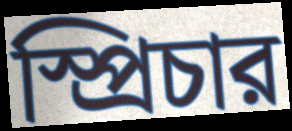
স্প্রিচার